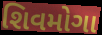
શિવમોગા